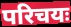
परिचयः